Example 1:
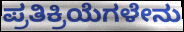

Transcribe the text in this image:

ಪ್ರತಿಕ್ರಿಯೆಗಳೇನು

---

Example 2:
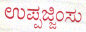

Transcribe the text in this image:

ಉಪ್ಪಜ್ಜಿಂಸು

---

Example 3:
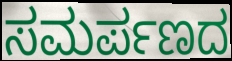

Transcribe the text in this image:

ಸಮರ್ಪಣದ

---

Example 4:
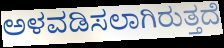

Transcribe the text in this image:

ಅಳವಡಿಸಲಾಗಿರುತ್ತದೆ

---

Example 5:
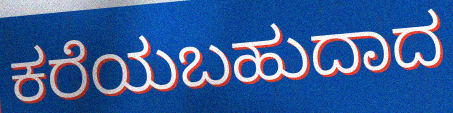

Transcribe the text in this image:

ಕರೆಯಬಹುದಾದ